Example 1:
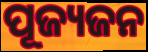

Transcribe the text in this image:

ପୂଜ୍ୟଜନ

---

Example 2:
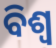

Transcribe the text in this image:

ବିଶ୍ୱ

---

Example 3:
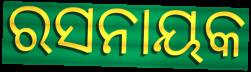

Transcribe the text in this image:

ରସନାୟକ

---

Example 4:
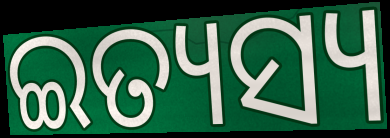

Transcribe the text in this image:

ଇତ୍ୟସ୍ୟ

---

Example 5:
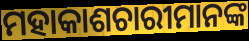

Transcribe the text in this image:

ମହାକାଶଚାରୀମାନଙ୍କ